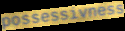
possessivness